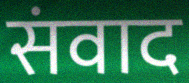
संवाद